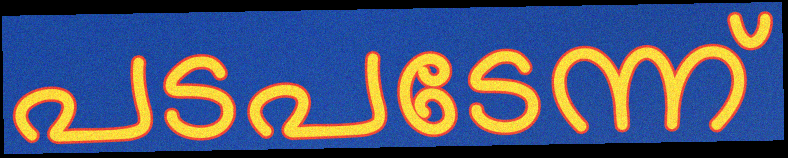
പടപടേന്ന്